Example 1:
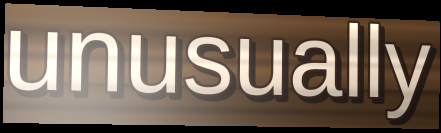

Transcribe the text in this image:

unusually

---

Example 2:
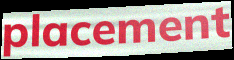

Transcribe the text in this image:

placement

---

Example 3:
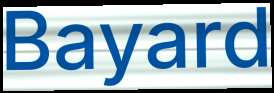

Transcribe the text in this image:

Bayard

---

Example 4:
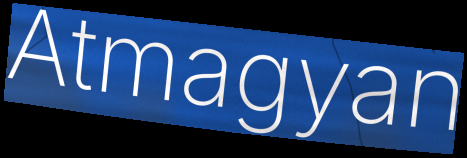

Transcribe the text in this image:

Atmagyan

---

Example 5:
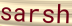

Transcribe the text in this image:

sarsh